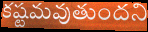
కష్టమవుతుందని